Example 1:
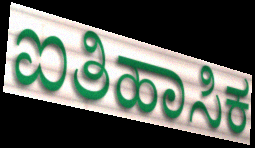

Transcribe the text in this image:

ಐತಿಹಾಸಿಕ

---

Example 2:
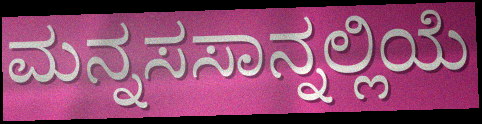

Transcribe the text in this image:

ಮನ್ನಸಸಾನ್ನಲ್ಲಿಯೆ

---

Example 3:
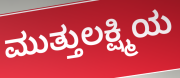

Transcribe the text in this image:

ಮುತ್ತುಲಕ್ಷ್ಮಿಯ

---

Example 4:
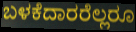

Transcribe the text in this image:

ಬಳಕೆದಾರರೆಲ್ಲರೂ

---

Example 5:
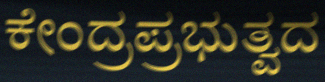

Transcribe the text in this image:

ಕೇಂದ್ರಪ್ರಭುತ್ವದ